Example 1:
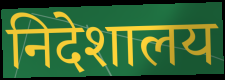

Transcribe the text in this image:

निदेशालय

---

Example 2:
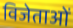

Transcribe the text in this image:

विजेताओं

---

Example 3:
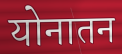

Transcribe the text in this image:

योनातन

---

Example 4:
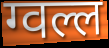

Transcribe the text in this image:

ग्वल्ल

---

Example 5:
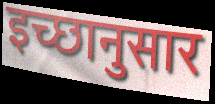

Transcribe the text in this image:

इच्छानुसार